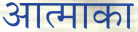
आत्माका